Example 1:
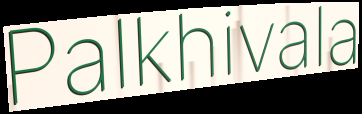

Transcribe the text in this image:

Palkhivala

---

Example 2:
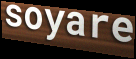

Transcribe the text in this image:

soyare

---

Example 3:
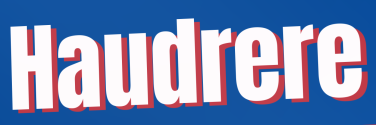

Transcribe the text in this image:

Haudrere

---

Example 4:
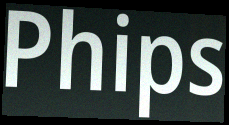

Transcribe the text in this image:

Phips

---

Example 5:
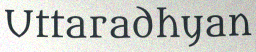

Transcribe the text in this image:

Uttaradhyan